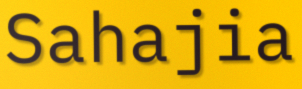
Sahajia